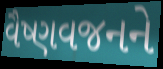
વૈષ્ણવજનને